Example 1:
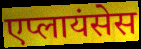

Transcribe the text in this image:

एप्लायंसेस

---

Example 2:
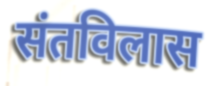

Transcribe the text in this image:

संतविलास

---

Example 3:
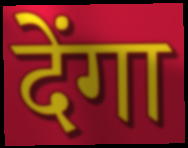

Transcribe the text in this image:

देंगा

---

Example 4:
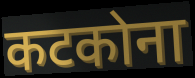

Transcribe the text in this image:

कटकोना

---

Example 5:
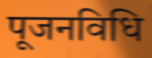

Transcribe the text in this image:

पूजनविधि